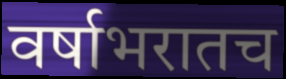
वर्षाभरातच